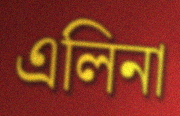
এলিনা